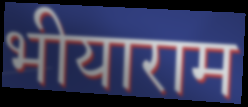
भीयाराम